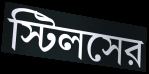
স্টিলসের